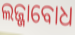
ଲଜ୍ଜାବୋଧ